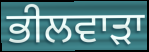
ਭੀਲਵਾੜਾ